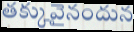
తక్కువైనందున